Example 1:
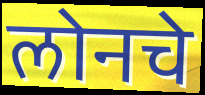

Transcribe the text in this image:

लोनचे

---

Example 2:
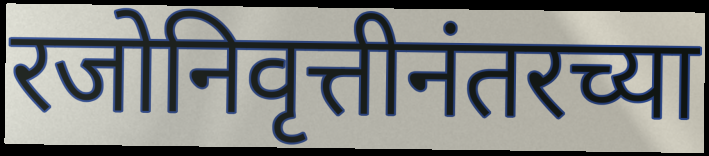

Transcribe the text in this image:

रजोनिवृत्तीनंतरच्या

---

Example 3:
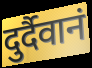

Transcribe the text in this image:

दुर्दैवानं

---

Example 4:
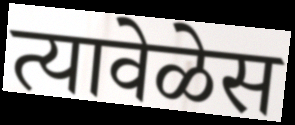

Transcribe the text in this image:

त्यावेळेस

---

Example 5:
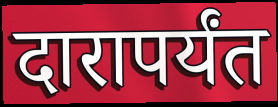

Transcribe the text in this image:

दारापर्यंत